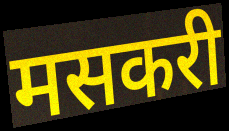
मसकरी